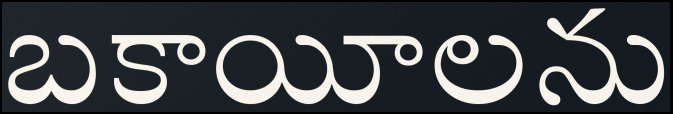
బకాయీలను